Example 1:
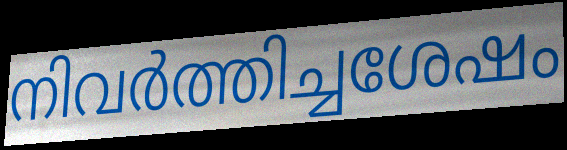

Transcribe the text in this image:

നിവർത്തിച്ചശേഷം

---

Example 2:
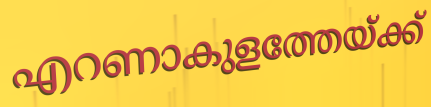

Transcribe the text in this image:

എറണാകുളത്തേയ്ക്ക്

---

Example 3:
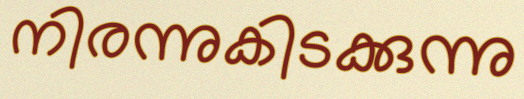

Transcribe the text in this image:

നിരന്നുകിടക്കുന്നു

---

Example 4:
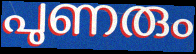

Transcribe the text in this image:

പുണരും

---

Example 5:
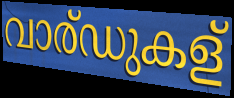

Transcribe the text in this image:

വാര്ഡുകള്